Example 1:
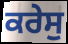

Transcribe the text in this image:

ਕਰੇਸੁ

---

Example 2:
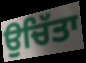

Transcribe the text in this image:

ਉਚਿੱਤਾ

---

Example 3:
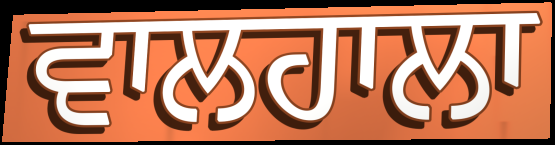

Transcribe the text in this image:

ਵਾਲਹਾਲਾ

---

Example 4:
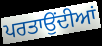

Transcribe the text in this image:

ਪਰਤਾਉਂਦੀਆਂ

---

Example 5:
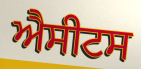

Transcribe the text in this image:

ਐਸੀਟਸ